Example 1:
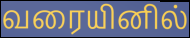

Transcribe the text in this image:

வரையினில்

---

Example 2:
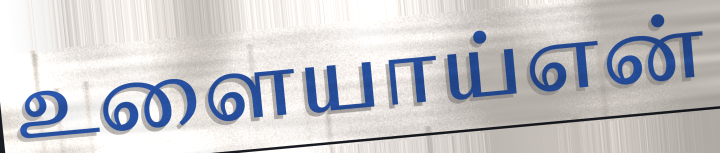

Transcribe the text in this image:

உளையாய்என்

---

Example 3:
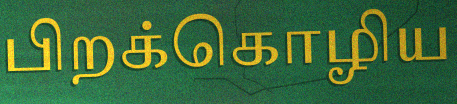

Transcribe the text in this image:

பிறக்கொழிய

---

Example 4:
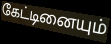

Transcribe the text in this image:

கேட்டினையும்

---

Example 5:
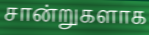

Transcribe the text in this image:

சான்றுகளாக